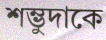
শম্ভুদাকে